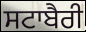
ਸਟਾਬੈਰੀ